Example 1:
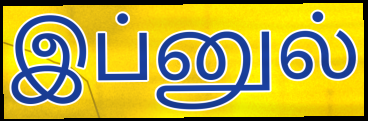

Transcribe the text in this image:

இப்னுல்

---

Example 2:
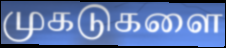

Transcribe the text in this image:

முகடுகளை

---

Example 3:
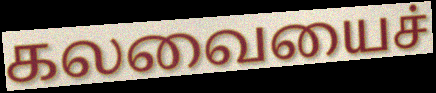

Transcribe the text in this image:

கலவையைச்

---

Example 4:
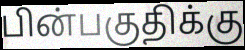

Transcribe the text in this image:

பின்பகுதிக்கு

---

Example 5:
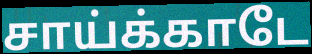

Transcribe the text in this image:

சாய்க்காடே